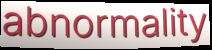
abnormality